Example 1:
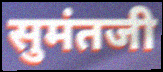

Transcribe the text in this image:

सुमंतजी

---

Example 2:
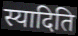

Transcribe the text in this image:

स्यादिति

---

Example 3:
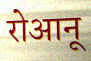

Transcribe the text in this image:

रोआनू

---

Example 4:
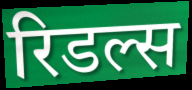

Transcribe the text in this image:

रिडल्स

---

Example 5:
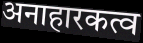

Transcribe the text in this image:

अनाहारकत्व